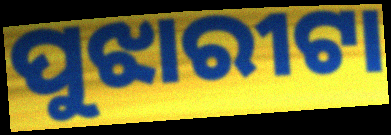
ପୁଝାରୀଟା